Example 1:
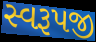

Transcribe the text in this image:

સ્વરૂપજી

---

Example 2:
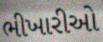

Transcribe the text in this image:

ભીખારીઓ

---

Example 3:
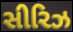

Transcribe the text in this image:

સીરિઝ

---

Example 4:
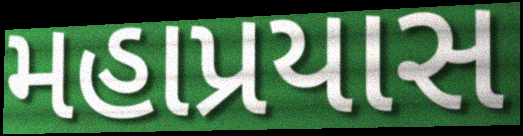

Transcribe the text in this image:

મહાપ્રયાસ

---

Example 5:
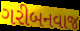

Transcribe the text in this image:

ગરીબનવાજ